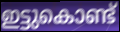
ഇട്ടുകൊണ്ട്